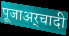
पूजाअर्चादी